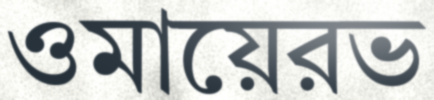
ওমায়েরভ